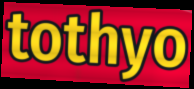
tothyo